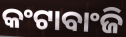
କଂଟାବାଂଜି